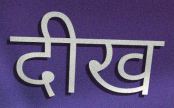
दीख